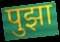
पुझा